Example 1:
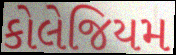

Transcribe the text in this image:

કોલેજિયમ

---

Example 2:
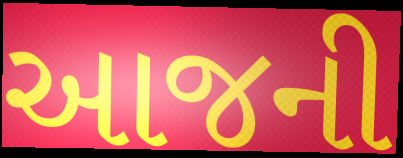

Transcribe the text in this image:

આજની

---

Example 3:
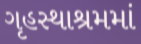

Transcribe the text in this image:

ગૃહસ્થાશ્રમમાં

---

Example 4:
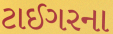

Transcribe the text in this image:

ટાઈગરના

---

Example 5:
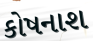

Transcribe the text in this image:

કોષનાશ